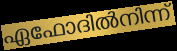
ഏഫോദിൽനിന്ന്